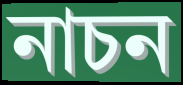
নাচন